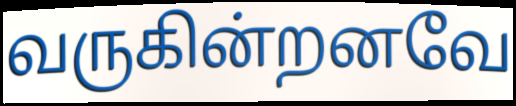
வருகின்றனவே